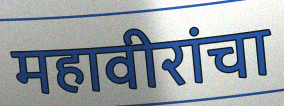
महावीरांचा